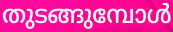
തുടങ്ങുമ്പോൾ